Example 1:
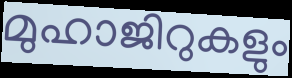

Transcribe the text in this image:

മുഹാജിറുകളും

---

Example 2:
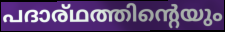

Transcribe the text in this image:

പദാര്ഥത്തിന്റെയും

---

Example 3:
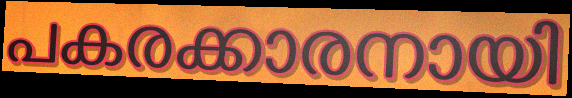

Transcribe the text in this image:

പകരക്കാരനായി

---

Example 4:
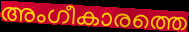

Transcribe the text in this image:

അംഗീകാരത്തെ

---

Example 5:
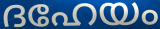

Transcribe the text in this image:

ദഹേയം